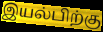
இயல்பிற்கு